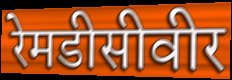
रेमडीसीवीर